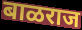
बाळराज